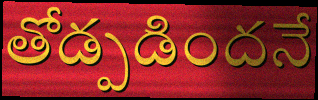
తోడ్పడిందనే